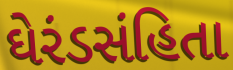
ઘેરંડસંહિતા